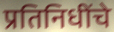
प्रतिनिधींचे